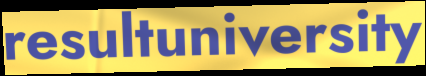
resultuniversity